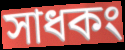
সাধকং